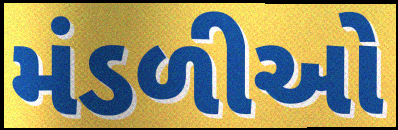
મંડળીઓ